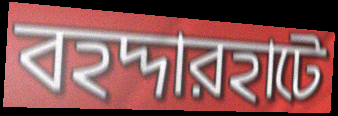
বহদ্দারহাটে